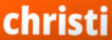
christi